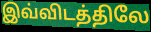
இவ்விடத்திலே